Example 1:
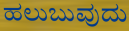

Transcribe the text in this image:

ಹಲುಬುವುದು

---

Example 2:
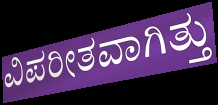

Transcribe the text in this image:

ವಿಪರೀತವಾಗಿತ್ತು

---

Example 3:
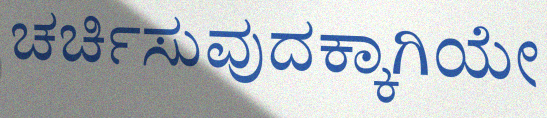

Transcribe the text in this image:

ಚರ್ಚಿಸುವುದಕ್ಕಾಗಿಯೇ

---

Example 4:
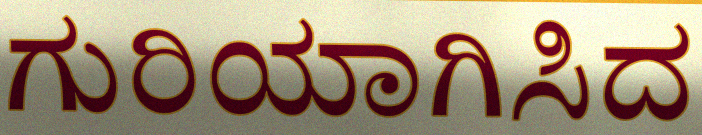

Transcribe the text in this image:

ಗುರಿಯಾಗಿಸಿದ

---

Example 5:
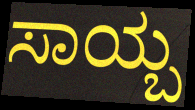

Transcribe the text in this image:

ಸಾಯ್ಬ